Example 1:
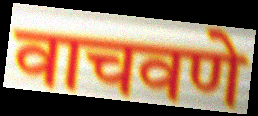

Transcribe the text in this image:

वाचवणे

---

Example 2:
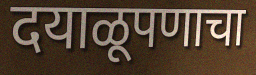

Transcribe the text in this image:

दयाळूपणाचा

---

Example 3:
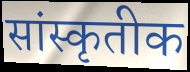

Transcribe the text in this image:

सांस्कृतीक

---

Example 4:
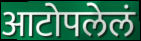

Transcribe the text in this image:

आटोपलेलं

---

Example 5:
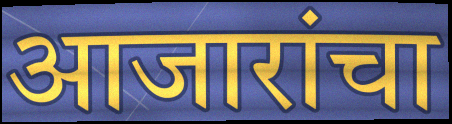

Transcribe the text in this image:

आजारांचा